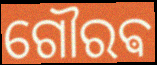
ଗୌରଵ